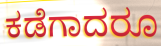
ಕಡೆಗಾದರೂ